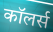
कॉलर्स